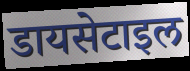
डायसेटाइल